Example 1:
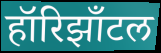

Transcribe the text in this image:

हॉरिझाँटल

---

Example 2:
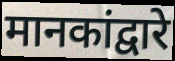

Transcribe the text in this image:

मानकांद्वारे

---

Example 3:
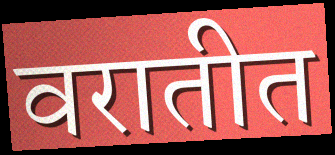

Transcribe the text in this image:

वरातीत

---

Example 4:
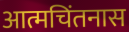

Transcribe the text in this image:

आत्मचिंतनास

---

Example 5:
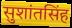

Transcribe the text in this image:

सुशांतसिंह